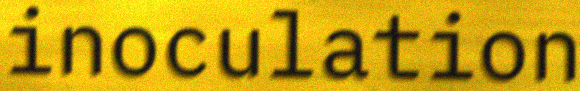
inoculation